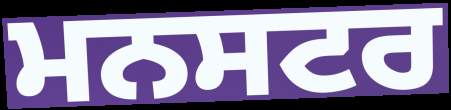
ਮਨਸਟਰ